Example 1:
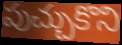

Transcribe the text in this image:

పుచ్చుకొని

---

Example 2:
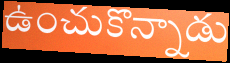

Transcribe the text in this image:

ఉంచుకొన్నాడు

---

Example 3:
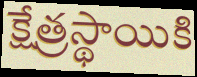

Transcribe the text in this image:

క్షేత్రస్థాయికి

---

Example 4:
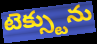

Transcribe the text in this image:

టెక్స్టును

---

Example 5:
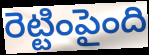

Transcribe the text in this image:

రెట్టింపైంది